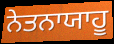
ਨੇਤਨਾਯਾਹੂ